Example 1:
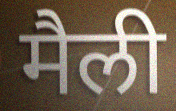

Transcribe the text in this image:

मैली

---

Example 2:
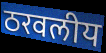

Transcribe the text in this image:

ठरवलीय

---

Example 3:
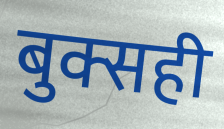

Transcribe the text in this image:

बुक्सही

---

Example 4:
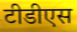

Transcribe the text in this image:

टीडीएस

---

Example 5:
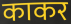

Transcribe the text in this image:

काकर